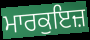
ਮਾਰਕੁਇਜ਼